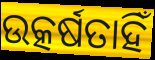
ଉତ୍କର୍ଷତାହିଁ